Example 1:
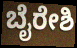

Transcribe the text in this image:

ಬೈರೇಶಿ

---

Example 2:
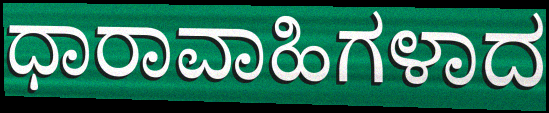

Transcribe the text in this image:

ಧಾರಾವಾಹಿಗಳಾದ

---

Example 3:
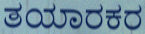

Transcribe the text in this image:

ತಯಾರಕರ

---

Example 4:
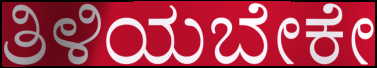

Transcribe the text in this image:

ತಿಳಿಯಬೇಕೇ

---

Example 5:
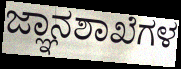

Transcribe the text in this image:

ಜ್ಞಾನಶಾಖೆಗಳ